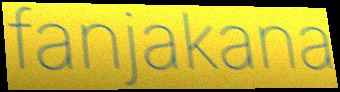
fanjakana